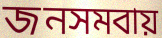
জনসমবায়